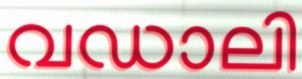
വഡാലി